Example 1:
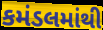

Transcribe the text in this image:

કમંડલમાંથી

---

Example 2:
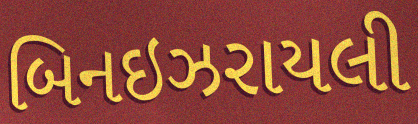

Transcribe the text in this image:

બિનઇઝરાયલી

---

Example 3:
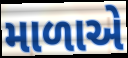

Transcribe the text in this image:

માળાએ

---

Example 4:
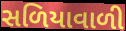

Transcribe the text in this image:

સળિયાવાળી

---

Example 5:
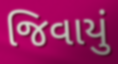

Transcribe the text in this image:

જિવાયું